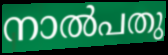
നാൽപതു